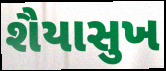
શૈયાસુખ